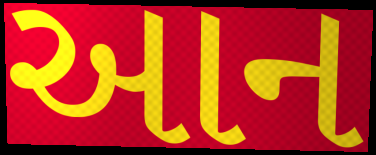
આન